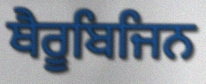
ਥੈਰੂਬਿਜਿਨ